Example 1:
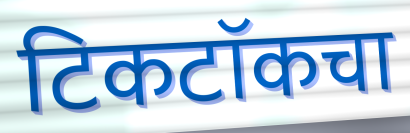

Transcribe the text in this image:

टिकटॉकचा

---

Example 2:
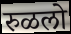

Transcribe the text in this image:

रुळलो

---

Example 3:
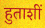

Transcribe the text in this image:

हुताशीं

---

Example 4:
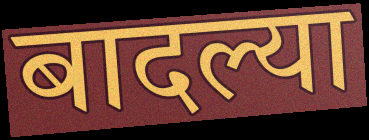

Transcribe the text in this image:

बादल्या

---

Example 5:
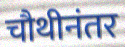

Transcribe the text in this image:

चौथीनंतर